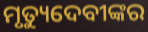
ମୃତ୍ୟୁଦେବୀଙ୍କର